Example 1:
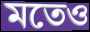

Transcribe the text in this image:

মতেও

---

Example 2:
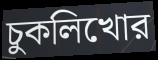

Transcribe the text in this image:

চুকলিখোর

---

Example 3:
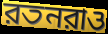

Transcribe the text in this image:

রতনরাও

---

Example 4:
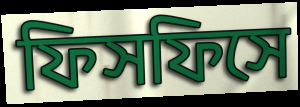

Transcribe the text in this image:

ফিসফিসে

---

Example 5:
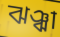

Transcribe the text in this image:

ঝঞ্ঝা